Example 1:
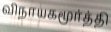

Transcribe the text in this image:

விநாயகமூர்த்தி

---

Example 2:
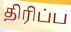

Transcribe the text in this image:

திரிப்ப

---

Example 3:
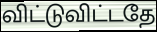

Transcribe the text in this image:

விட்டுவிட்டதே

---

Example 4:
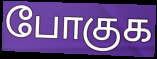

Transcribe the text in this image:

போகுக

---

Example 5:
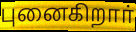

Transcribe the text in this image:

புனைகிறார்